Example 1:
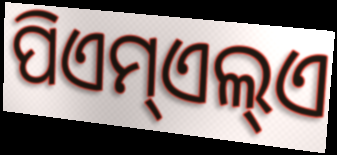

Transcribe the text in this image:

ପିଏମ୍ଏଲ୍ଏ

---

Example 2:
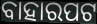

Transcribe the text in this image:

ବାହାରପଟ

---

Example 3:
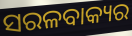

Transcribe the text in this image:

ସରଳବାକ୍ୟର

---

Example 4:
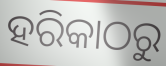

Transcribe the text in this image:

ହରିକାଠରୁ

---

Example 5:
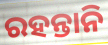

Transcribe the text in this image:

ରହନ୍ତାନି